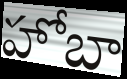
హోబా